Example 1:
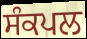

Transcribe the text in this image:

ਸੰਕਪਲ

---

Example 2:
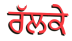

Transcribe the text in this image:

ਰੱਲਕੇ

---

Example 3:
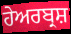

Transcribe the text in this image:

ਹੇਅਰਬ੍ਰਸ਼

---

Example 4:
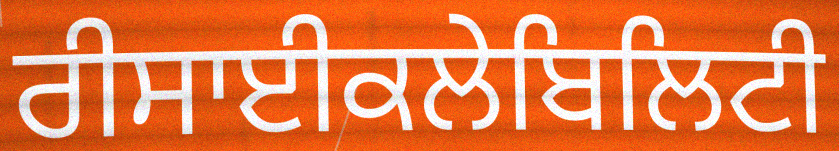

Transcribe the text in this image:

ਰੀਸਾਈਕਲੇਬਿਲਿਟੀ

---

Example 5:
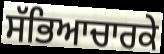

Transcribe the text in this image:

ਸੱਭਿਆਚਾਰਕੇ